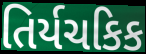
તિર્યચકિક